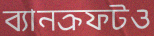
ব্যানক্রফটও